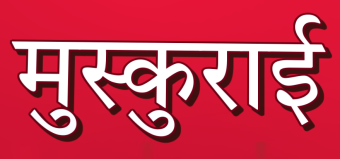
मुस्कुराई